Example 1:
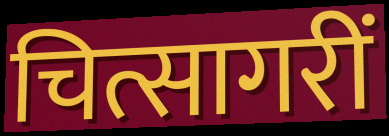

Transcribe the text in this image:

चित्सागरीं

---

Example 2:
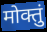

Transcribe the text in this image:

मोक्तुं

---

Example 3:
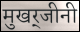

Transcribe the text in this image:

मुखर्जीनी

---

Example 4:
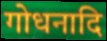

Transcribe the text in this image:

गोधनादि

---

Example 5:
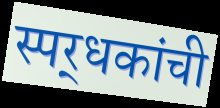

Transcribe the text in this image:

स्पर्धकांची